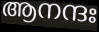
ആനന്ദഃ